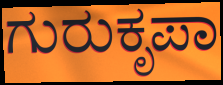
ಗುರುಕೃಪಾ